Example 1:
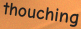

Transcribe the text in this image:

thouching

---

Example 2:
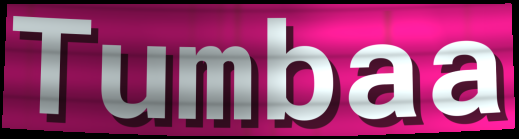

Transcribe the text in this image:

Tumbaa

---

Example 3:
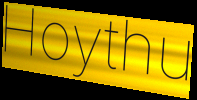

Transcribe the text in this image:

Hoythu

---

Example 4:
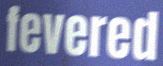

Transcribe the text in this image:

fevered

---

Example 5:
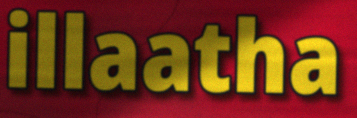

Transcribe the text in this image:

illaatha